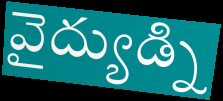
వైద్యుడ్ని